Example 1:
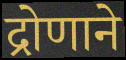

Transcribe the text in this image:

द्रोणाने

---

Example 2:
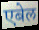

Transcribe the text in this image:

एबेल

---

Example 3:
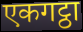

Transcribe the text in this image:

एकगट्ठा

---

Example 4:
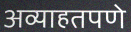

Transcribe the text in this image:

अव्याहतपणे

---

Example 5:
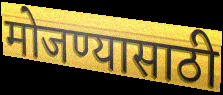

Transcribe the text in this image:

मोजण्यासाठी